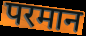
परमान